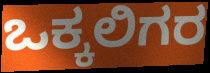
ಒಕ್ಕಲಿಗರ